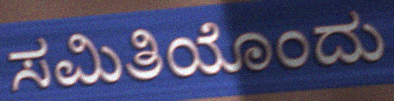
ಸಮಿತಿಯೊಂದು